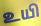
உயி